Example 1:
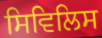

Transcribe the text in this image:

ਸਿਵਿਲਿਸ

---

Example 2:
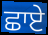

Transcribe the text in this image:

ਛਾਏ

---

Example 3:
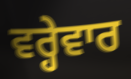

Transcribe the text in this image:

ਵਰ੍ਹੇਵਾਰ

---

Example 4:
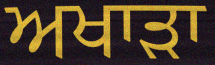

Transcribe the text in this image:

ਅਖਾੜਾ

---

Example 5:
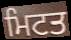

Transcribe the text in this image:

ਮਿਟਤ